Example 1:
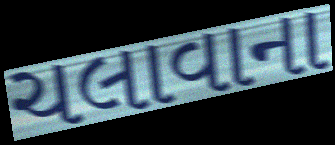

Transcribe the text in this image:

ચલાવાના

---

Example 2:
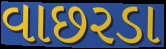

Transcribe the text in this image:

વાછરડા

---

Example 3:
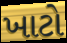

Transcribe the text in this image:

ખાટો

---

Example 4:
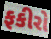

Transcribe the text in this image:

ફકીરો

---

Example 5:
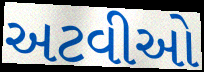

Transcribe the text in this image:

અટવીઓ